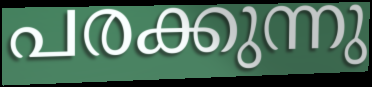
പരക്കുന്നു